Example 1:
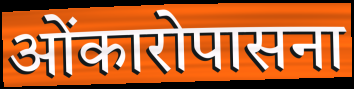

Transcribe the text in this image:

ओंकारोपासना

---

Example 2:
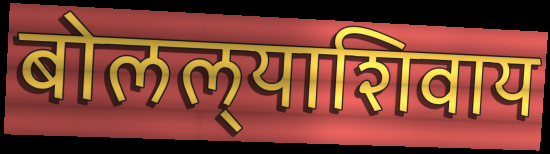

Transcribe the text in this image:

बोलल्याशिवाय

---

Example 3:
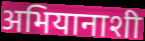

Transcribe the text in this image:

अभियानाशी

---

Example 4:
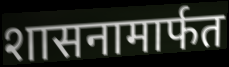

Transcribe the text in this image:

शासनामार्फत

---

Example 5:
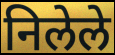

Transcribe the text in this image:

निलेले